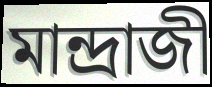
মান্দ্রাজী